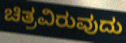
ಚಿತ್ರವಿರುವುದು